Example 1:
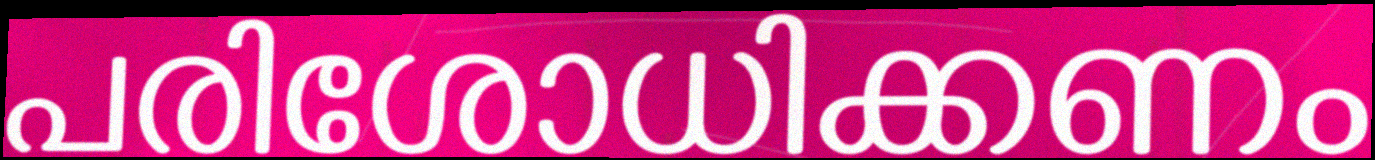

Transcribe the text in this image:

പരിശോധിക്കണം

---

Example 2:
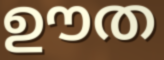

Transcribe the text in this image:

ഊത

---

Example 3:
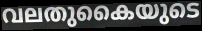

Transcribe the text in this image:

വലതുകൈയുടെ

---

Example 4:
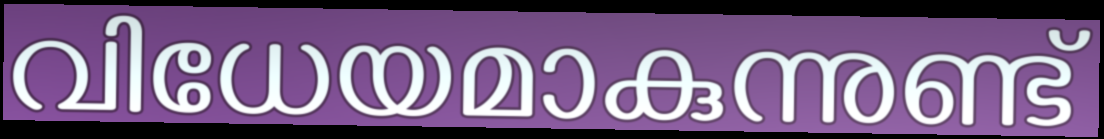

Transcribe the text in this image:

വിധേയമാകുന്നുണ്ട്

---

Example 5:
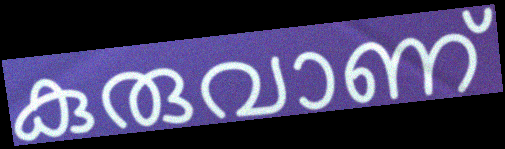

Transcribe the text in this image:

കുരുവാണ്